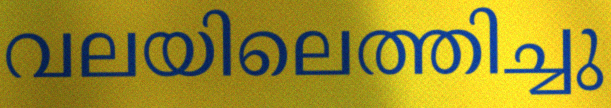
വലയിലെത്തിച്ചു